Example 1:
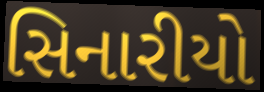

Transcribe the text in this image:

સિનારીયો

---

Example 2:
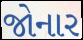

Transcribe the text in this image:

જોનાર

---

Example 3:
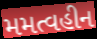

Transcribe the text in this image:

મમત્વહીન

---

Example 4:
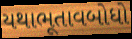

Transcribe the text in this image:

યથાભૂતાવબોધો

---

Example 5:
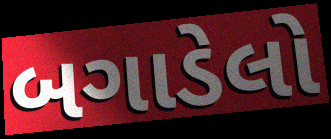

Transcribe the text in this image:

બગાડેલો